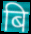
बि